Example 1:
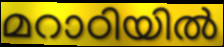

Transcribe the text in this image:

മറാഠിയിൽ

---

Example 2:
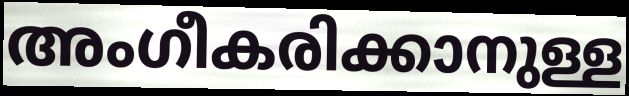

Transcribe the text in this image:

അംഗീകരിക്കാനുള്ള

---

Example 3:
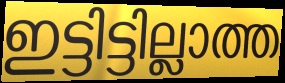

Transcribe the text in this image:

ഇട്ടിട്ടില്ലാത്ത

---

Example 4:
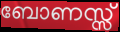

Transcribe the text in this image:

ബോണസ്സ്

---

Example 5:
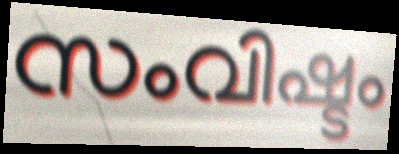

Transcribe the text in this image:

സംവിഷ്ടം